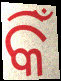
କିଁ